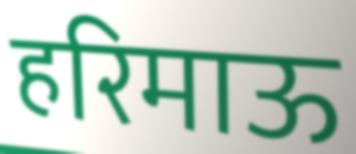
हरिमाऊ